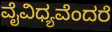
ವೈವಿಧ್ಯವೆಂದರೆ